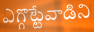
ఎగ్గొట్టేవాడిని